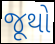
જૂથો